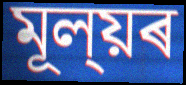
মূল্য়ৰ